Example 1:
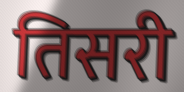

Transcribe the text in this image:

तिसरी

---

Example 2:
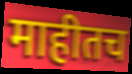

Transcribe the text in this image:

माहीतच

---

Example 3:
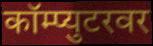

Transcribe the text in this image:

कॉम्प्युटरवर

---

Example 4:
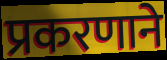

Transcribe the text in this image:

प्रकरणाने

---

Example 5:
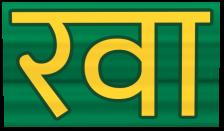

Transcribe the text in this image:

रवा